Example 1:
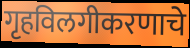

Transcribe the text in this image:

गृहविलगीकरणाचे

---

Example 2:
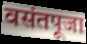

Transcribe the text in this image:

वसंतपूजा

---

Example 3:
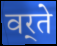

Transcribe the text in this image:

वर्ते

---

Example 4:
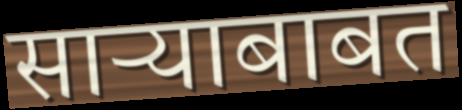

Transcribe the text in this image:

साऱ्याबाबत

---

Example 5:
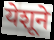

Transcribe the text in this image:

येशूने